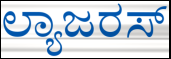
ಲ್ಯಾಜರಸ್